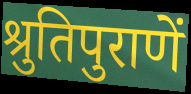
श्रुतिपुराणें